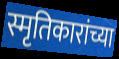
स्मृतिकारांच्या